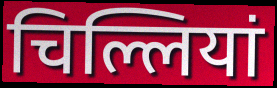
चिल्लियां